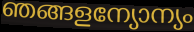
ഞങ്ങളന്യോന്യം